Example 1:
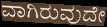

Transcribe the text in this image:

ವಾಗಿರುವುದೇ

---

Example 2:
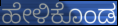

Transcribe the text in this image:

ಹೇಳಿಕೊಂಡ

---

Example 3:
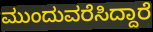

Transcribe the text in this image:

ಮುಂದುವರೆಸಿದ್ದಾರೆ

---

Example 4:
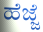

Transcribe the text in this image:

ಹೆಜ್ಜೆ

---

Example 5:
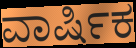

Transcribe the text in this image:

ವಾರ್ಷಿಕ